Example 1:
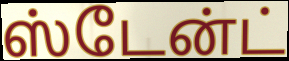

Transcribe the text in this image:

ஸ்டேன்ட்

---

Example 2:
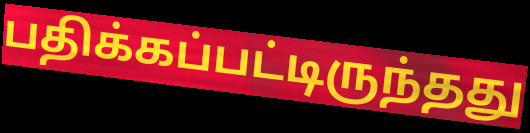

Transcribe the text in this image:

பதிக்கப்பட்டிருந்தது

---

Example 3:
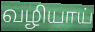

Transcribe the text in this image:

வழியாய்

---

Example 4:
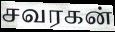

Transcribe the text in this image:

சவரகன்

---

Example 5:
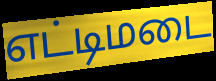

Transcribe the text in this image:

எட்டிமடை